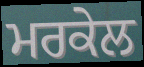
ਮਰਕੇਲ